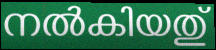
നൽകിയതു്